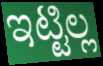
ಇಟ್ಟಿಲ್ಲ